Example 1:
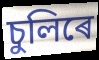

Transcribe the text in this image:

চুলিৰে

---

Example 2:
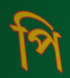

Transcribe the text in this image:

পি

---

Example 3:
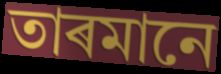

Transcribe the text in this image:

তাৰমানে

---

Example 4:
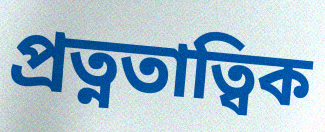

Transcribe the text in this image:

প্ৰত্নতাত্বিক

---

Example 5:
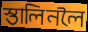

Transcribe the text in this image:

স্তালিনলৈ